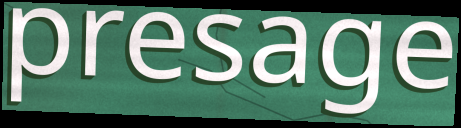
presage